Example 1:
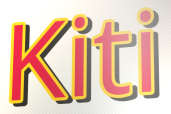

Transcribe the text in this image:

Kiti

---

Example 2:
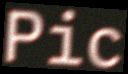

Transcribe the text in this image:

Pic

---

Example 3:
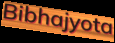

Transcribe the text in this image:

Bibhajyota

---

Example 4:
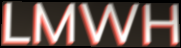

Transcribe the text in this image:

LMWH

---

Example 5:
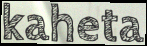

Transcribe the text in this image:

kaheta